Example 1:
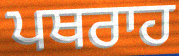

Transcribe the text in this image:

ਪਥਰਾਹ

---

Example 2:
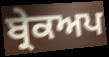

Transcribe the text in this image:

ਬ੍ਰੇਕਅਪ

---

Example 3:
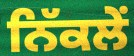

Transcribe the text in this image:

ਨਿੱਕਲੇਂ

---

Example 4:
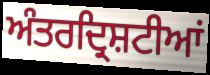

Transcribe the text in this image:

ਅੰਤਰਦ੍ਰਿਸ਼ਟੀਆਂ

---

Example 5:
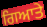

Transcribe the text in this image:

ਗਿਆਤੇ